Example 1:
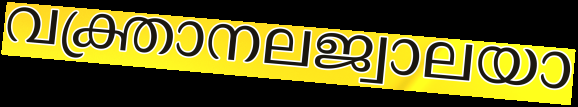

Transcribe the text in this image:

വക്ത്രാനലജ്വാലയാ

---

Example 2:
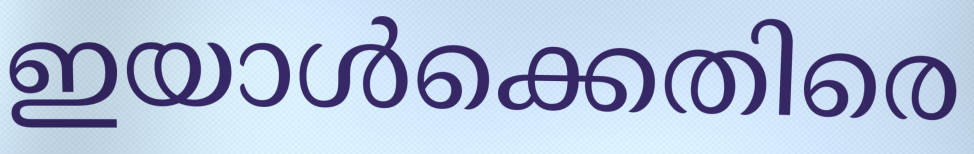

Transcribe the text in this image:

ഇയാൾക്കെതിരെ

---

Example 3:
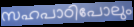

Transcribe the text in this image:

സഹപാഠിപോലും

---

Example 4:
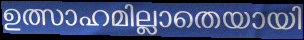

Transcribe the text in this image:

ഉത്സാഹമില്ലാതെയായി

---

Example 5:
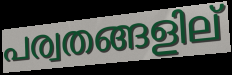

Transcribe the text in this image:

പര്വതങ്ങളില്